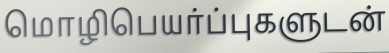
மொழிபெயர்ப்புகளுடன்